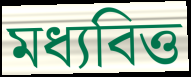
মধ্যবিত্ত